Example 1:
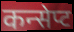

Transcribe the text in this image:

कन्सेप्ट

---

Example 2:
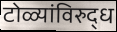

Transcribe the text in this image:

टोळ्यांविरुद्ध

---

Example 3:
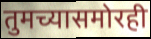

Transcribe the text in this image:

तुमच्यासमोरही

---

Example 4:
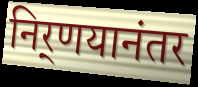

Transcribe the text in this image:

निर्णयानंतर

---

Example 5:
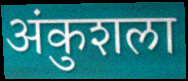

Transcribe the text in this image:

अंकुशला